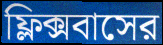
ফ্লিক্সবাসের